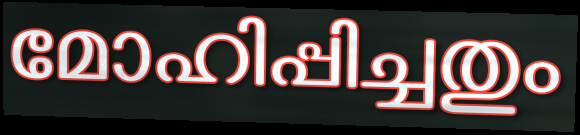
മോഹിപ്പിച്ചതും